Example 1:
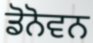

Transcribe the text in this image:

ਡੋਨੋਵਨ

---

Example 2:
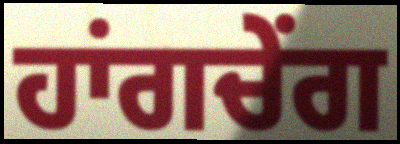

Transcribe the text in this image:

ਹਾਂਗਚੇਂਗ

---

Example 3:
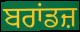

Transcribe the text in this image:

ਬਰਾਂਡਜ਼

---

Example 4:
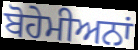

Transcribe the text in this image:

ਬੋਹੇਮੀਅਨਾਂ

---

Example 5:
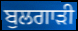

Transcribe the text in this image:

ਬੁਲਗਾੜੀ